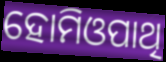
ହୋମିଓପାଥି